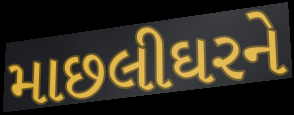
માછલીઘરને